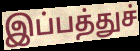
இப்பத்துச்